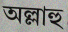
অল্লাহু